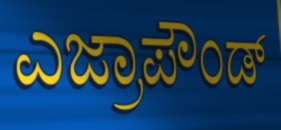
ಎಜ್ರಾಪೌಂಡ್